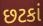
છટકાં